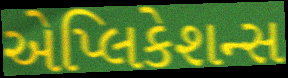
એપ્લિકેશન્સ